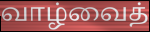
வாழ்வைத்